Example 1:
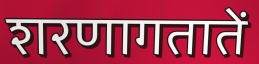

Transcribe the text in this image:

शरणागतातें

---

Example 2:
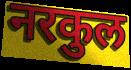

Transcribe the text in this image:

नरकुल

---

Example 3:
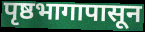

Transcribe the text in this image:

पृष्ठभागापासून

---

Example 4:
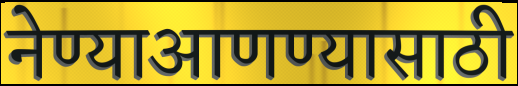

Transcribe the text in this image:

नेण्याआणण्यासाठी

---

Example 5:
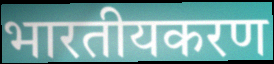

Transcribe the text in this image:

भारतीयकरण